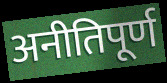
अनीतिपूर्ण